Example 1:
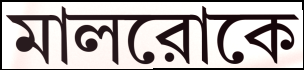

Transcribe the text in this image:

মালরোকে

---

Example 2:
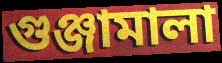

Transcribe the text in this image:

গুঞ্জামালা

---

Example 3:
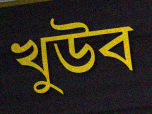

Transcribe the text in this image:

খুউব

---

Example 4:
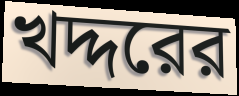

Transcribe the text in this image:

খদ্দরের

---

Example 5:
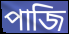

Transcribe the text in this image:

পাজি